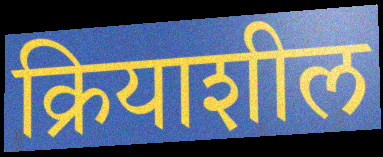
क्रियाशील